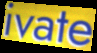
ivate